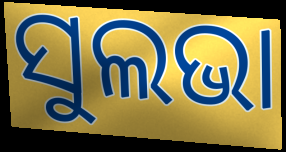
ସୁଲଭା